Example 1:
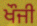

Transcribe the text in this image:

ਖੌਜੀ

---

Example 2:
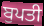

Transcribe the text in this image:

ਬੁਪਤੀ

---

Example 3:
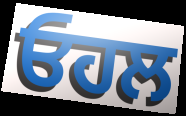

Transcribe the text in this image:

ਓਹਲ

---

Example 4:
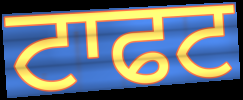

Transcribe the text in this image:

ਟਾਫਟ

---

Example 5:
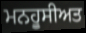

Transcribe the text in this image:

ਮਨਹੂਸੀਅਤ